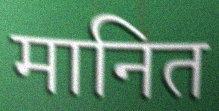
मानित